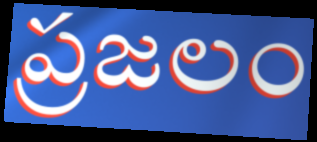
ప్రజలం